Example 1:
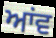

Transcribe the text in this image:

ਆਂਵ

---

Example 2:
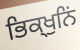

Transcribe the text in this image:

ਭਿਕ੍ਖੁਨਿਂ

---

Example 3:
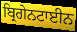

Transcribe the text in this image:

ਬ੍ਰਿਗੇਨਟਾਈਨ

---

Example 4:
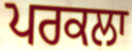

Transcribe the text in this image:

ਪਰਕਲਾ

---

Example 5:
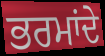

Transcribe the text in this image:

ਭਰਮਾਂਦੇ